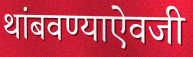
थांबवण्याऐवजी